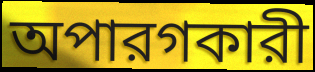
অপারগকারী